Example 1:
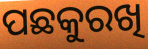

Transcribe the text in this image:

ପଛକୁରଖି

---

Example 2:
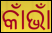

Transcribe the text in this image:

କାଁଭାଁ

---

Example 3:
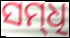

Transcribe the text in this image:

ସମ୍‌ଧି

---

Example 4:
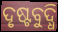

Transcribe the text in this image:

ଦୃଷ୍ଟବୁଦ୍ଧି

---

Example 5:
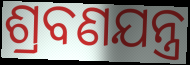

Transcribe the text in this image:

ଶ୍ରବଣଯନ୍ତ୍ର